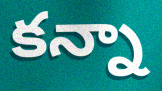
కన్నా